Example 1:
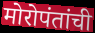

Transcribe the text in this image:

मोरोपंतांची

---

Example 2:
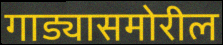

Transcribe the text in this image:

गाड्यासमोरील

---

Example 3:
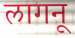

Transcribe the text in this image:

लागनू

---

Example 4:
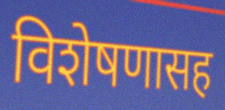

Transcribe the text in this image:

विशेषणासह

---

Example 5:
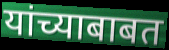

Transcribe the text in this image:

यांच्याबाबत